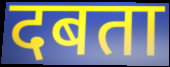
दबता